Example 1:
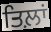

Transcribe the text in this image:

ਤਿਲ਼ਾਂ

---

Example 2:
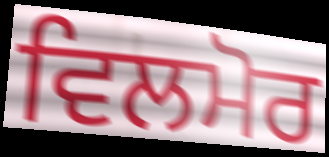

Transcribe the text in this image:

ਵਿਲਮੋਰ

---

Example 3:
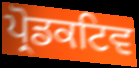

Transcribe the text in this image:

ਪ੍ਰੋਡਕਟਿਵ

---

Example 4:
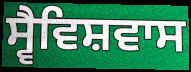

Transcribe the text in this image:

ਸ੍ਵੈਵਿਸ਼ਵਾਸ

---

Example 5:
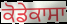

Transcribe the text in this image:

ਕੋਡੇਕਾਸਾ